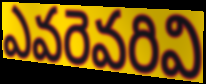
ఎవరెవరివి